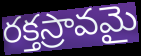
రక్తస్రావమై